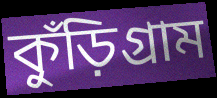
কুঁড়িগ্রাম